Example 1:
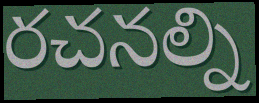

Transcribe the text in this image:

రచనల్ని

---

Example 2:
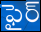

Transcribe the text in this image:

ఫైర్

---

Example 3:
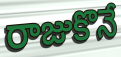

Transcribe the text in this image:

రాజుకొనే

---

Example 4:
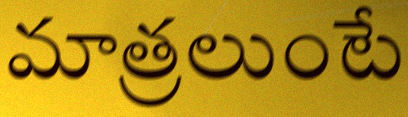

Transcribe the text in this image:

మాత్రలుంటే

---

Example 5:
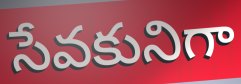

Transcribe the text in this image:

సేవకునిగా